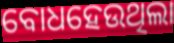
ବୋଧହେଉଥିଲା